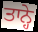
ਤਾਨ੍ਹੇ